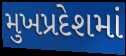
મુખપ્રદેશમાં